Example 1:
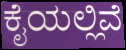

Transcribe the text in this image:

ಕೈಯಲ್ಲಿವೆ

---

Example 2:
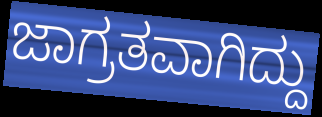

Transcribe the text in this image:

ಜಾಗ್ರತವಾಗಿದ್ದು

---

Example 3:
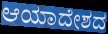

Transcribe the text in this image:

ಆಯಾದೇಶದ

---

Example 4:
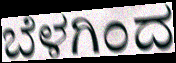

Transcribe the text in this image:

ಬೆಳಗಿಂದ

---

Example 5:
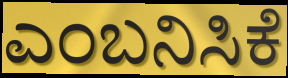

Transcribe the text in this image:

ಎಂಬನಿಸಿಕೆ